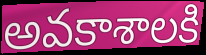
అవకాశాలకి